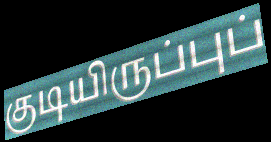
குடியிருப்புப்